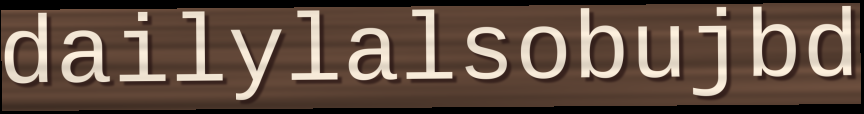
dailylalsobujbd